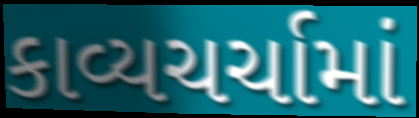
કાવ્યચર્ચામાં